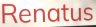
Renatus